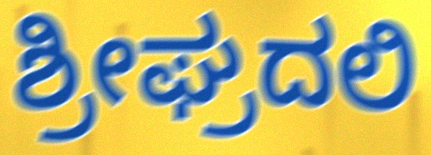
ಶ್ರೀಘ್ರದಲಿ